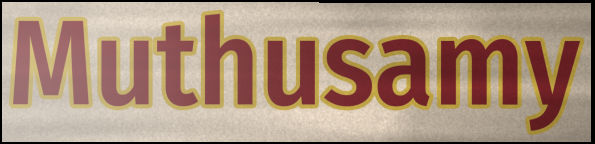
Muthusamy